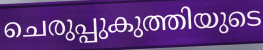
ചെരുപ്പുകുത്തിയുടെ